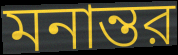
মনান্তর